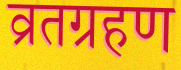
व्रतग्रहण